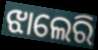
ଝାଲେରି